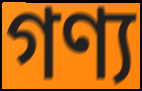
গণ্য